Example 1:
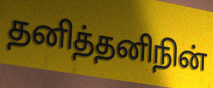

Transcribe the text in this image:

தனித்தனிநின்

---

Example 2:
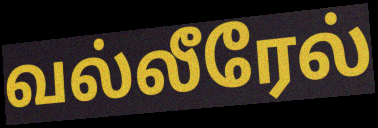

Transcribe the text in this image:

வல்லீரேல்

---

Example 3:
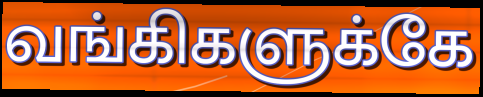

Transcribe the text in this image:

வங்கிகளுக்கே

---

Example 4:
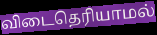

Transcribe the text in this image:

விடைதெரியாமல்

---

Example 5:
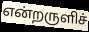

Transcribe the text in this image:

என்றருளிச்